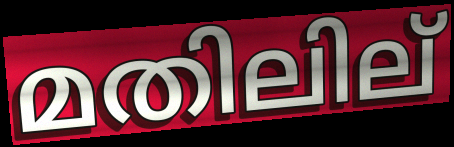
മതിലില്